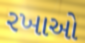
રખાઓ